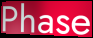
Phase